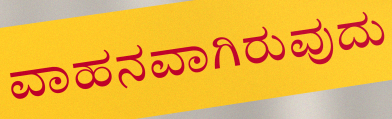
ವಾಹನವಾಗಿರುವುದು